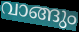
വാങ്ങും